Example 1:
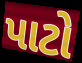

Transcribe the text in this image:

પાટો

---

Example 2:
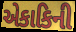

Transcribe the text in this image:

એકાકિની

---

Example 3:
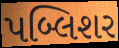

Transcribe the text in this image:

પબ્લિશર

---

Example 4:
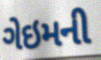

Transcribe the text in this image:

ગેઇમની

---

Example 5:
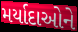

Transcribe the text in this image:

મર્યાદાઓને